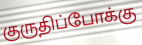
குருதிப்போக்கு